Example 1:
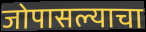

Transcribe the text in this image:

जोपासल्याचा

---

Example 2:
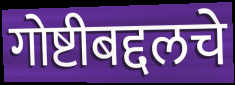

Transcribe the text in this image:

गोष्टीबद्दलचे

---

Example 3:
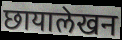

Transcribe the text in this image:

छायालेखन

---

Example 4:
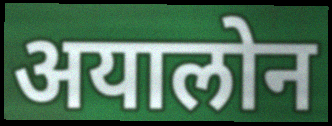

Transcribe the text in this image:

अयालोन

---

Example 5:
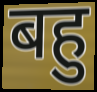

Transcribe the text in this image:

बहु